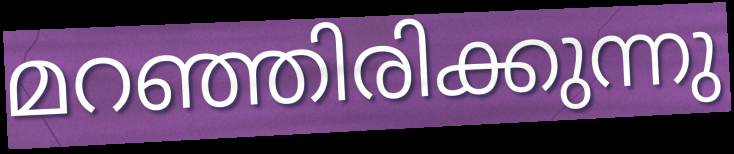
മറഞ്ഞിരിക്കുന്നു